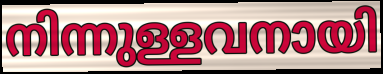
നിന്നുള്ളവനായി